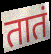
तातं